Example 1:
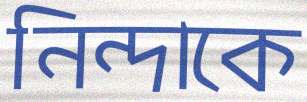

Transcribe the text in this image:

নিন্দাকে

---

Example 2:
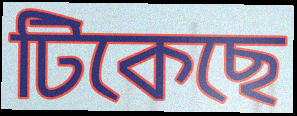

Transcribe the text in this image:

টিকেছে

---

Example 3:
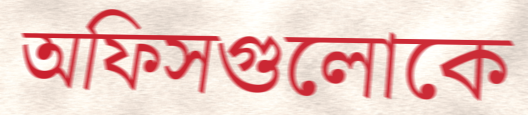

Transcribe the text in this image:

অফিসগুলোকে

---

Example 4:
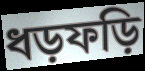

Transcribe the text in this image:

ধড়ফড়ি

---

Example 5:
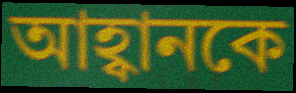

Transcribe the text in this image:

আহ্বানকে